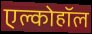
एल्कोहॉल